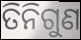
ତିନିଗୁଣ